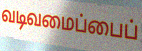
வடிவமைப்பைப்